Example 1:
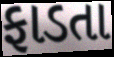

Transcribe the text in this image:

ફાડતા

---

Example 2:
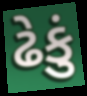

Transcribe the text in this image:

ઢેકું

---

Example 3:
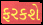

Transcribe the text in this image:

ફરકશે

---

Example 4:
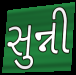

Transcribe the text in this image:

સુન્ની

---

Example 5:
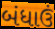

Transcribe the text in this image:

બંધાઉં